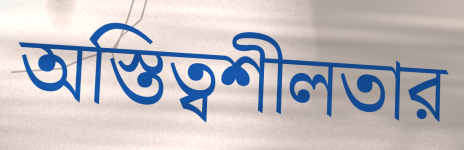
অস্তিত্বশীলতার